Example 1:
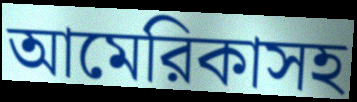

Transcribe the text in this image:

আমেরিকাসহ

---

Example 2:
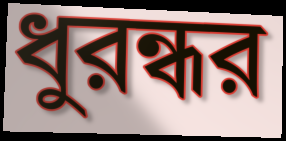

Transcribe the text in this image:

ধুরন্ধর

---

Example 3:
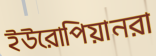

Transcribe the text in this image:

ইউরোপিয়ানরা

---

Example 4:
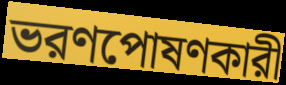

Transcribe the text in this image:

ভরণপোষণকারী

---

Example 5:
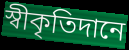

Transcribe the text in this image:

স্বীকৃতিদানে